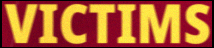
VICTIMS